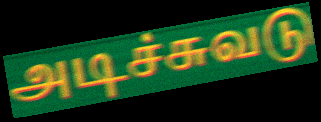
அடிச்சுவடு